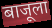
बाजूला